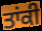
ਤਾਂਕੀ